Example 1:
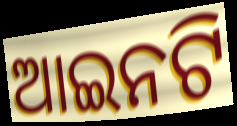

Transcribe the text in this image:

ଆଇନଟି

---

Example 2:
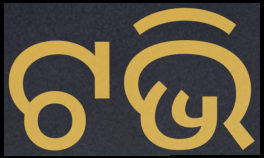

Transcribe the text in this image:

ଟଭି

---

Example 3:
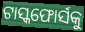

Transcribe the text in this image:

ଟାସ୍କଫୋର୍ସକୁ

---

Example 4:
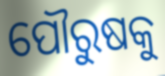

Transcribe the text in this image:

ପୌରୁଷକୁ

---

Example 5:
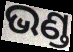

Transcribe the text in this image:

ଭଣ୍ଡ